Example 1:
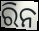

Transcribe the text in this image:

ରିନ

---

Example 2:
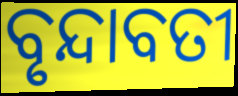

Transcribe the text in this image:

ବୃନ୍ଦାବତୀ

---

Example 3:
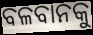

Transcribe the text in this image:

ବଳବାନକୁ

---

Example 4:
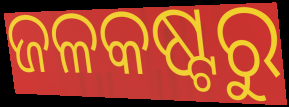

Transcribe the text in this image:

ଜଳକଷ୍ଟରୁ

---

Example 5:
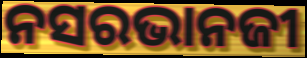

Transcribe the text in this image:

ନସରଭାନଜୀ